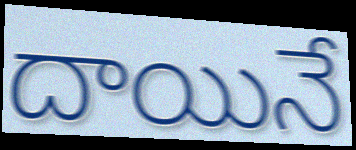
దాయినే